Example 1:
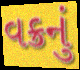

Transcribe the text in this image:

વક્રનું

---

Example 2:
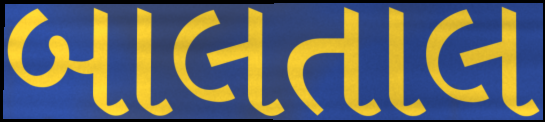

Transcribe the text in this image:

બાલતાલ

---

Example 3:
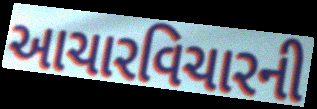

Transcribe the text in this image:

આચારવિચારની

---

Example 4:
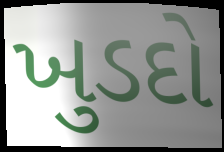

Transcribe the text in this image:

ખુડદો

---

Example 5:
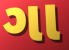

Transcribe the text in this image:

ગા